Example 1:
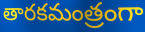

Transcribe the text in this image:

తారకమంత్రంగా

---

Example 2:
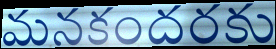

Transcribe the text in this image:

మనకందరకు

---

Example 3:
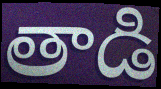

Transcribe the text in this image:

తాడి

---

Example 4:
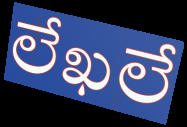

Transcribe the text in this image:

లేఖలే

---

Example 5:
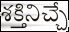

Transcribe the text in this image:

శక్తినిచ్చే